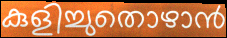
കുളിച്ചുതൊഴാൻ